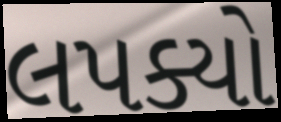
લપક્યો